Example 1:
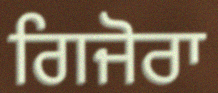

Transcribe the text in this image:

ਗਿਜੋਰਾ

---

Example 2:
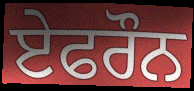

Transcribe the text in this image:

ਏਫਰੌਨ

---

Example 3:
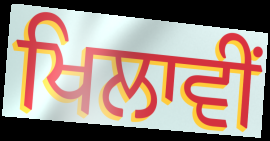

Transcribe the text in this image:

ਖਿਲਾਵੀਂ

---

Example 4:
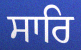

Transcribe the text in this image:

ਸਾਰਿ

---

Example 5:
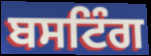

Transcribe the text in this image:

ਬਸਟਿੰਗ